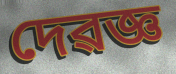
দেৱজ্ঞ